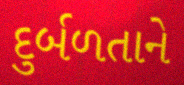
દુર્બળતાને